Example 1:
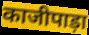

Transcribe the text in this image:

काजीपाड़ा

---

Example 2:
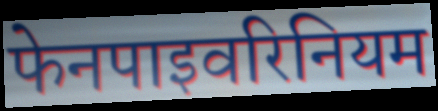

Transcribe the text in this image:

फेनपाइवरिनियम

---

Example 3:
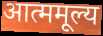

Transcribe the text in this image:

आत्ममूल्य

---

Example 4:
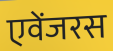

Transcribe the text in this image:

एवेंजरस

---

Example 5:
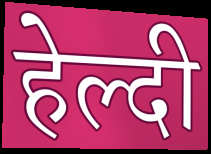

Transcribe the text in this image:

हेल्दी